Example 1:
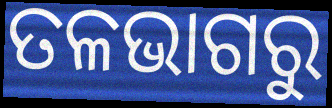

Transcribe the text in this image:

ତଳଭାଗରୁ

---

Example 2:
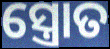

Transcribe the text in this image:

ସ୍ତ୍ରୋତ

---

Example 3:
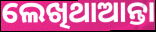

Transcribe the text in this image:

ଲେଖିଥାଆନ୍ତା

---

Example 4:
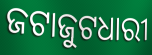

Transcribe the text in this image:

ଜଟାଜୁଟଧାରୀ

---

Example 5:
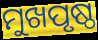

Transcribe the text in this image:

ମୁଖପୃଷ୍ଠ